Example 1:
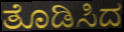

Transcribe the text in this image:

ತೊಡಿಸಿದ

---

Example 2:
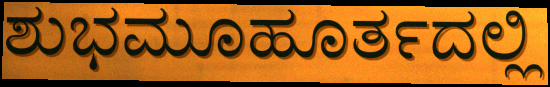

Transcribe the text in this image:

ಶುಭಮೂಹೂರ್ತದಲ್ಲಿ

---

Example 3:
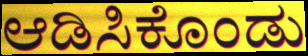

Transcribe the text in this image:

ಆಡಿಸಿಕೊಂಡು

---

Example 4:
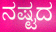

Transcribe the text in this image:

ನಷ್ಟದ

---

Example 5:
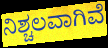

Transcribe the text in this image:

ನಿಶ್ಚಲವಾಗಿವೆ